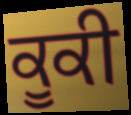
ਕੂਕੀ